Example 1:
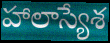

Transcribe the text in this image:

హాలాస్యేశ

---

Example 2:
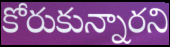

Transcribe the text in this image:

కోరుకున్నారని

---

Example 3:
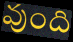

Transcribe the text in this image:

వుంది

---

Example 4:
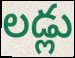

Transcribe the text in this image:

లడ్లు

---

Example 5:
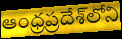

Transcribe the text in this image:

ఆంధ్రప్రదేశ్‌లోని